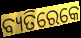
ବ୍ୟତିରେକେ